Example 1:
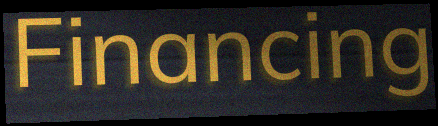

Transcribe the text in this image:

Financing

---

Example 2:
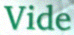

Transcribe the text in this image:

Vide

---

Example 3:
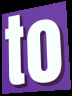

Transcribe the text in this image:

to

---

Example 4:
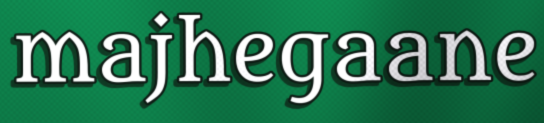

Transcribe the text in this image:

majhegaane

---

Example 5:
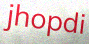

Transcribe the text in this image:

jhopdi